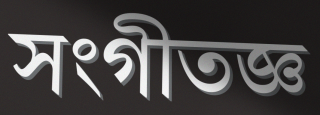
সংগীতজ্ঞ